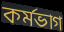
কৰ্মভাগ